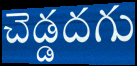
చెడ్డదగు